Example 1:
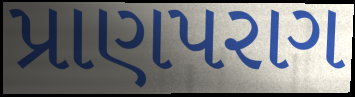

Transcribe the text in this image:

પ્રાણપરાગ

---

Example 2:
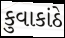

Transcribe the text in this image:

કુવાકાંઠે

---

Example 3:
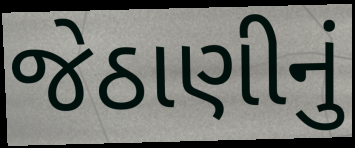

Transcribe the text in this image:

જેઠાણીનું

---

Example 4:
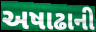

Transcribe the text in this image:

અષાઢાની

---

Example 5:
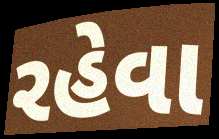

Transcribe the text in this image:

રહેવા